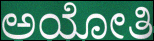
ಅಯೋತಿ